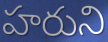
హరుని